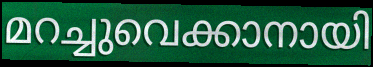
മറച്ചുവെക്കാനായി